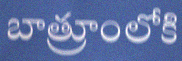
బాత్రూంలోకి